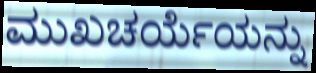
ಮುಖಚರ್ಯೆಯನ್ನು